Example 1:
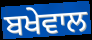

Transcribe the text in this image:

ਬਖੇਵਾਲ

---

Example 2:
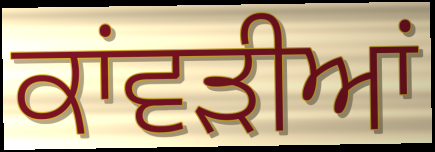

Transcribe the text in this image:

ਕਾਂਵੜੀਆਂ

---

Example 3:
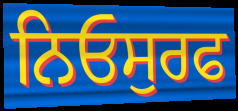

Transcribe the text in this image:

ਨਿਓਸੁਰਫ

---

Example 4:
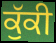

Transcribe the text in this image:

ਕੁੱਕੀ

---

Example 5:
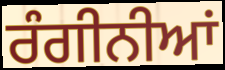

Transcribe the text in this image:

ਰੰਗੀਨੀਆਂ